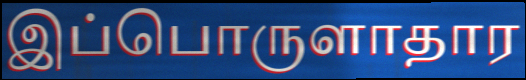
இப்பொருளாதார